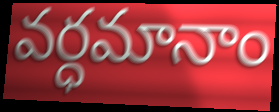
వర్ధమానాం